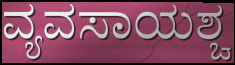
ವ್ಯವಸಾಯಶ್ಚ